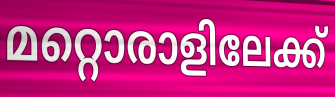
മറ്റൊരാളിലേക്ക്